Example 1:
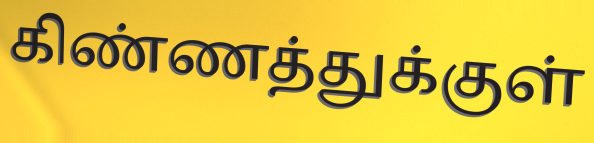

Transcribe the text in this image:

கிண்ணத்துக்குள்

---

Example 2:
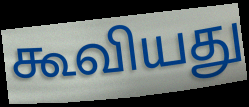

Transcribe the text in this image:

கூவியது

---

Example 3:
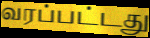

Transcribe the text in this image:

வரப்பட்டது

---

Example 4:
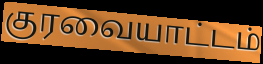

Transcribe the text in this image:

குரவையாட்டம்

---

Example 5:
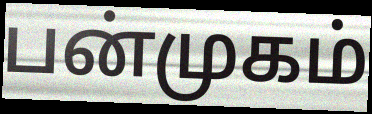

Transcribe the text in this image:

பன்முகம்